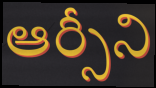
ఆర్సీని